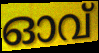
ഓവ്